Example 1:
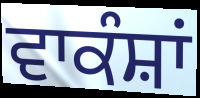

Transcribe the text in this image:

ਵਾਕੰਸ਼ਾਂ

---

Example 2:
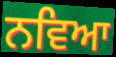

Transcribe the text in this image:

ਨਵਿਆ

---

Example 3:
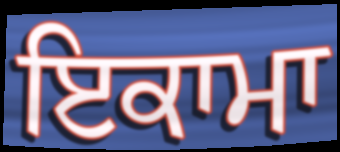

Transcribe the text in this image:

ਇਕਾਮਾ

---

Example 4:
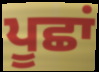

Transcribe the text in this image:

ਪੂਛਾਂ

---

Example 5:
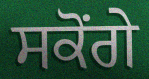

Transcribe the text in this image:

ਸਕੋਂਗੇ